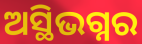
ଅସ୍ଥିଭଗ୍ନର